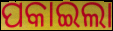
ପକାଇଲା